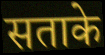
सताके